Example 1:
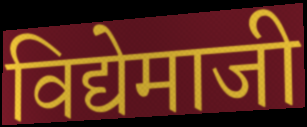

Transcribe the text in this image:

विद्येमाजी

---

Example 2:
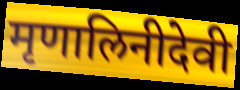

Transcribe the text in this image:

मृणालिनीदेवी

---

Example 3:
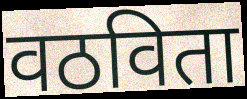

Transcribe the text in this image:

वठविता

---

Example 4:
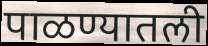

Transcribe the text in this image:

पाळण्यातली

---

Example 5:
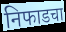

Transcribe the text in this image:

निफाडचा